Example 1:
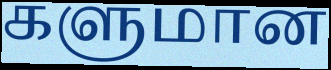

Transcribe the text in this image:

களுமான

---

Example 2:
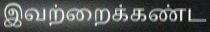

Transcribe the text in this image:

இவற்றைக்கண்ட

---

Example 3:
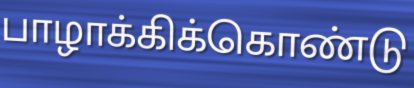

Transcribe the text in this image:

பாழாக்கிக்கொண்டு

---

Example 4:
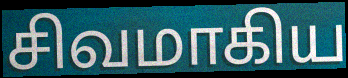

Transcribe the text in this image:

சிவமாகிய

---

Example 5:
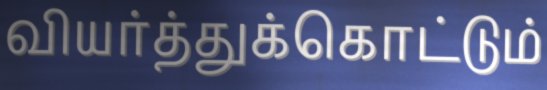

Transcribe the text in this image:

வியர்த்துக்கொட்டும்